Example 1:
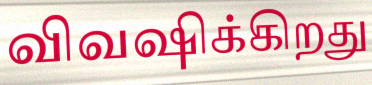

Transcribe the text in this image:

விவஷிக்கிறது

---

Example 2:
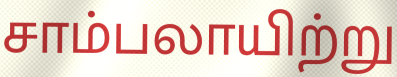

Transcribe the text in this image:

சாம்பலாயிற்று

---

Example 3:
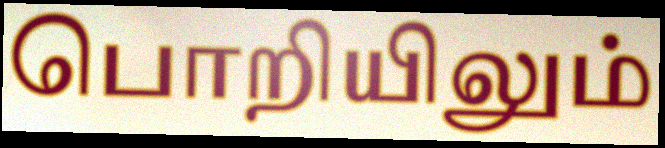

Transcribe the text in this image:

பொறியிலும்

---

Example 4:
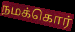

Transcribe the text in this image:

நமக்கொர்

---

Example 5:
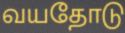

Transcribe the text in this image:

வயதோடு